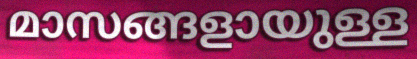
മാസങ്ങളായുള്ള